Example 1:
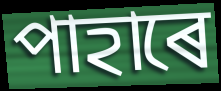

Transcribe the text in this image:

পাহাৰে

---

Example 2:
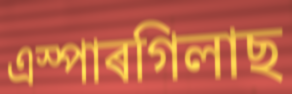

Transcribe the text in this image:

এস্পাৰগিলাছ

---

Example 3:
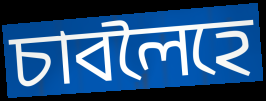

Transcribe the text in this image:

চাবলৈহে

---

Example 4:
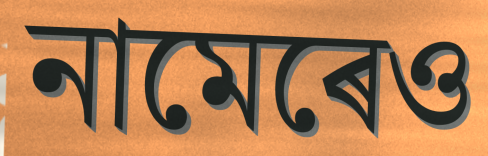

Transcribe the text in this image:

নামেৰেও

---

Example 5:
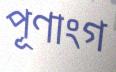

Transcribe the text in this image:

পূণাংগ